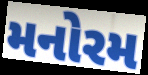
મનોરમ